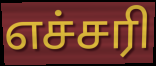
எச்சரி